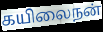
கயிலைநன்